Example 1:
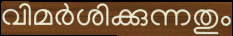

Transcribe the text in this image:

വിമർശിക്കുന്നതും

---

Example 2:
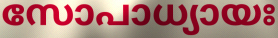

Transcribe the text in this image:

സോപാധ്യായഃ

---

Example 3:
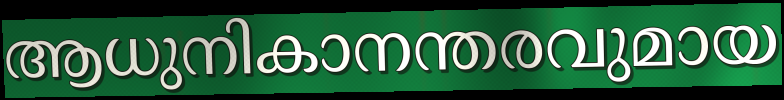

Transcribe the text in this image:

ആധുനികാനന്തരവുമായ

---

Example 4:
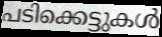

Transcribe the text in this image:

പടിക്കെട്ടുകൾ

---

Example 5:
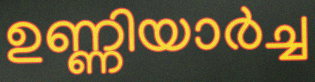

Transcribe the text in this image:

ഉണ്ണിയാർച്ച